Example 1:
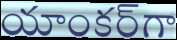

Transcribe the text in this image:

యాంకర్‌గా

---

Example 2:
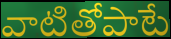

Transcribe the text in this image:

వాటితోపాటే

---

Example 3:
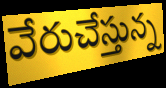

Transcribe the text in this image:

వేరుచేస్తున్న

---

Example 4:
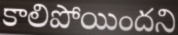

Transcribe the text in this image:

కాలిపోయిందని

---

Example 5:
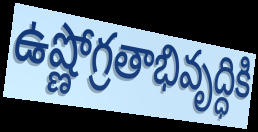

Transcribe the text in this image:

ఉష్ణోగ్రతాభివృద్ధికి